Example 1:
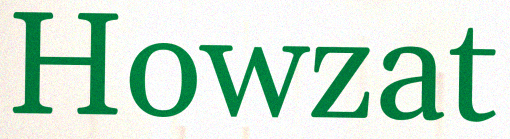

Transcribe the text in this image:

Howzat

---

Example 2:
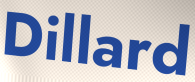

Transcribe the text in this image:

Dillard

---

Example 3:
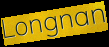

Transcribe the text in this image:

Longnan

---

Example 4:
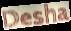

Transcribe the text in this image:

Desha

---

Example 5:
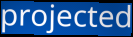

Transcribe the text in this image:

projected